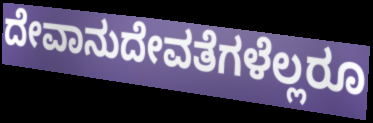
ದೇವಾನುದೇವತೆಗಳೆಲ್ಲರೂ